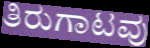
ತಿರುಗಾಟವು